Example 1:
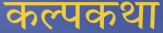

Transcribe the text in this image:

कल्पकथा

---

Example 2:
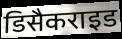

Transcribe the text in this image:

डिसैकराइड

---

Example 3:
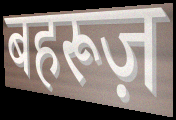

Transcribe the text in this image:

बहरूज़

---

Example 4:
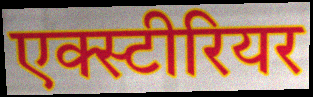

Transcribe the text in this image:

एक्स्टीरियर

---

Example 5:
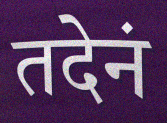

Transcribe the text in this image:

तदेनं